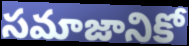
సమాజానికో